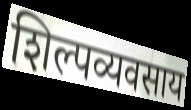
शिल्पव्यवसाय